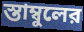
স্তাম্বুলের